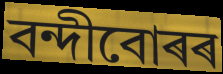
বন্দীবোৰৰ